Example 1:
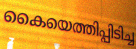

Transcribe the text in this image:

കൈയെത്തിപ്പിടിച്ച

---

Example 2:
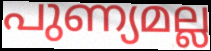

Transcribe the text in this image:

പുണ്യമല്ല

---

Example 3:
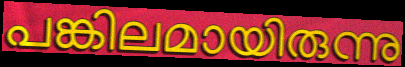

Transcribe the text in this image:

പങ്കിലമായിരുന്നു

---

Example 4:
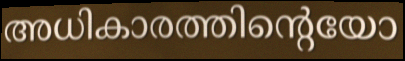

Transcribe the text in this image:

അധികാരത്തിന്റെയോ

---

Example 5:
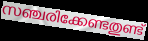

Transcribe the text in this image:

സഞ്ചരിക്കേണ്ടതുണ്ട്